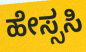
ಹೇಸ್ಸಸಿ